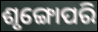
ଶୃଙ୍ଗୋପରି